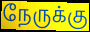
நேருக்கு